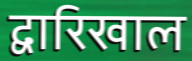
द्वारिखाल